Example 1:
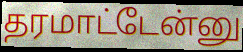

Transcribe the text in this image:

தரமாட்டேன்னு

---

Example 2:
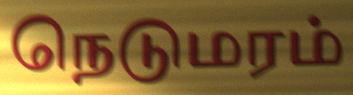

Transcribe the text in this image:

நெடுமரம்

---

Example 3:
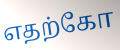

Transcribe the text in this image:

எதற்கோ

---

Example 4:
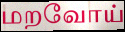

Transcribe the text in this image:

மறவோய்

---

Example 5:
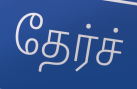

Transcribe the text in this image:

தேர்ச்